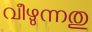
വീഴുന്നതു